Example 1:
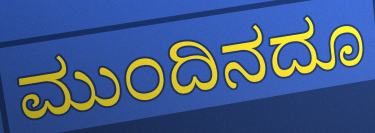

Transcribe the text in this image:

ಮುಂದಿನದೂ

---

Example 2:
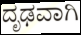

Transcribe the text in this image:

ದೃಢವಾಗಿ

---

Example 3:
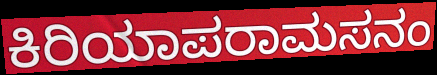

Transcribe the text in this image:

ಕಿರಿಯಾಪರಾಮಸನಂ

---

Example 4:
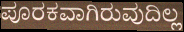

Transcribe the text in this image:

ಪೂರಕವಾಗಿರುವುದಿಲ್ಲ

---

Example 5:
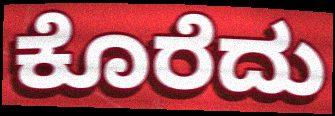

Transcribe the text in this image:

ಕೊರೆದು